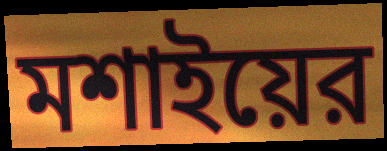
মশাইয়ের